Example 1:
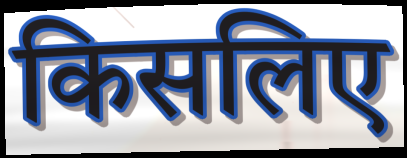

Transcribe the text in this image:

किसलिए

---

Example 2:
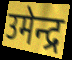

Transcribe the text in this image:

उमेन्द्र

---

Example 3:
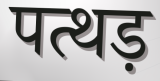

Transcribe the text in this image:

पत्थड़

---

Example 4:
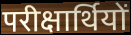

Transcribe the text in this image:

परीक्षार्थियों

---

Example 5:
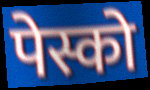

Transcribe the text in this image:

पेस्को